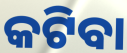
କଟିବା